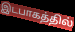
இடபாகத்தில்